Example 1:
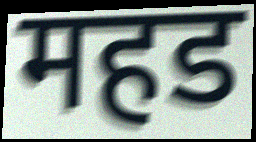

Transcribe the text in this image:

महड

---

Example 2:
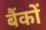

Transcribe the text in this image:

बैंकों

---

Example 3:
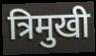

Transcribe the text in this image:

त्रिमुखी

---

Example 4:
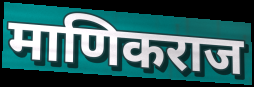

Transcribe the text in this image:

माणिकराज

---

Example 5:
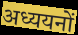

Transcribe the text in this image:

अध्ययनों